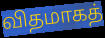
விதமாகத்